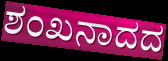
ಶಂಖನಾದದ